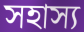
সহাস্য